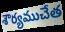
శౌర్యముచేత